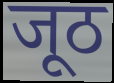
जूठ